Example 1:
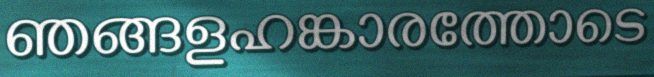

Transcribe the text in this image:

ഞങ്ങളഹങ്കാരത്തോടെ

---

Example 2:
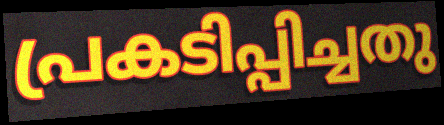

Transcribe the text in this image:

പ്രകടിപ്പിച്ചതു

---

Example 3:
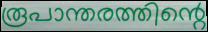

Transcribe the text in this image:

രൂപാന്തരത്തിന്റെ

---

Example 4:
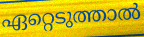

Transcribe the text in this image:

ഏറ്റെടുത്താൽ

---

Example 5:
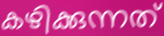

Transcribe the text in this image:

കഴിക്കുന്നത്